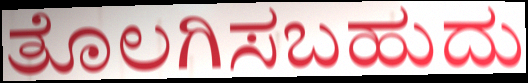
ತೊಲಗಿಸಬಹುದು